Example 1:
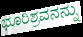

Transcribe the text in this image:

ಭೂರಿಶ್ರವನನ್ನು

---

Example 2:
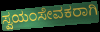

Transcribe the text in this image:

ಸ್ವಯಂಸೇವಕರಾಗಿ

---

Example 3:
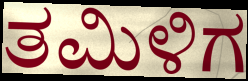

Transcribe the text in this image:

ತಮಿಳಿಗ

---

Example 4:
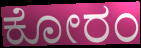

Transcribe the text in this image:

ಕೋರಂ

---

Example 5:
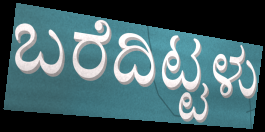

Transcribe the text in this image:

ಬರೆದಿಟ್ಟಳು